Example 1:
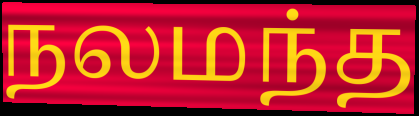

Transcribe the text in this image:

நலமந்த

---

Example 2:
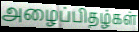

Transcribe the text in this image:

அழைப்பிதழ்கள்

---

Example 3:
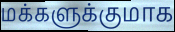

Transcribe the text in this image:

மக்களுக்குமாக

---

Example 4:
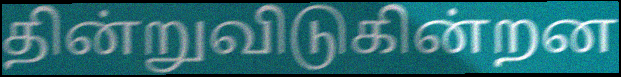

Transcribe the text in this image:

தின்றுவிடுகின்றன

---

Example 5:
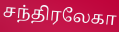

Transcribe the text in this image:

சந்திரலேகா